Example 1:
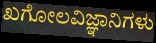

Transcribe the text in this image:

ಖಗೋಲವಿಜ್ಞಾನಿಗಳು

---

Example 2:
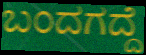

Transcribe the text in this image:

ಬಂದಗದ್ದೆ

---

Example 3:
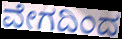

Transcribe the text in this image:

ವೇಗದಿಂದ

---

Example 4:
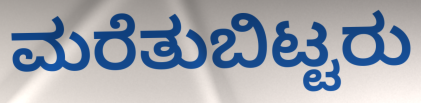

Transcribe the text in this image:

ಮರೆತುಬಿಟ್ಟರು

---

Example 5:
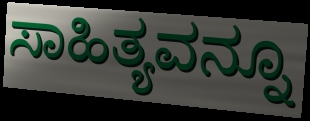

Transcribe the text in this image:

ಸಾಹಿತ್ಯವನ್ನೂ